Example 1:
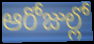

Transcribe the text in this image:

ఆరోజుల్లో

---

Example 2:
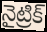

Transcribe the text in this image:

నైట్రిక్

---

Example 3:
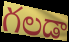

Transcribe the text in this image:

గలడా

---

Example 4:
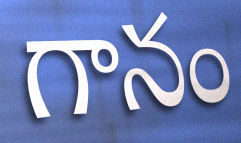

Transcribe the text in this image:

గానం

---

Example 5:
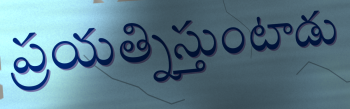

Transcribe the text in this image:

ప్రయత్నిస్తుంటాడు